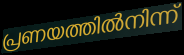
പ്രണയത്തിൽനിന്ന്